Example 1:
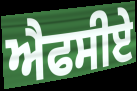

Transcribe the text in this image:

ਐਫਸੀਏ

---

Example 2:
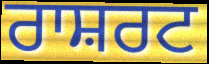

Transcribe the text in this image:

ਰਾਸ਼ਰਟ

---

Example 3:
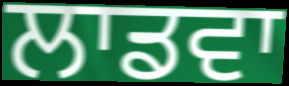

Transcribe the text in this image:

ਲਾਡਵਾ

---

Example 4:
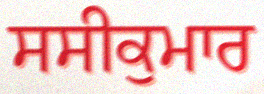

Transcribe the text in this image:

ਸਸੀਕੁਮਾਰ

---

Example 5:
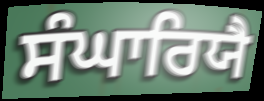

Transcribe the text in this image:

ਸੰਘਾਰਿਯੈ